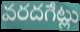
వరదగేట్లు